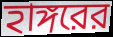
হাঙ্গরের